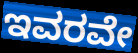
ಇವರವೇ